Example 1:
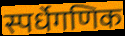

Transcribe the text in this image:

स्पर्धेगणिक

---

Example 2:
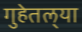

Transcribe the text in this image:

गुहेतल्या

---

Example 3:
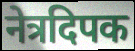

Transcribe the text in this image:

नेत्रदिपक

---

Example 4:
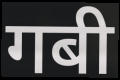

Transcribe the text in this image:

गबी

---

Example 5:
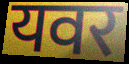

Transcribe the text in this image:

यवर